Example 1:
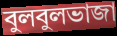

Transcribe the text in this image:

বুলবুলভাজা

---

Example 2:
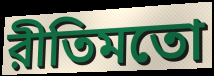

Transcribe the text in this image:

রীতিমতো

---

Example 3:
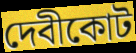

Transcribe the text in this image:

দেবীকোট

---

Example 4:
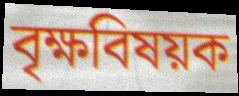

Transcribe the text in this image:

বৃক্ষবিষয়ক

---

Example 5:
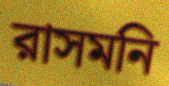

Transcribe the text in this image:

রাসমনি